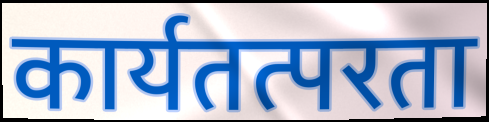
कार्यतत्परता